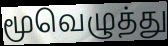
மூவெழுத்து